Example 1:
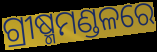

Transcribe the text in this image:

ଗ୍ରୀଷ୍ମମଣ୍ଡଳରେ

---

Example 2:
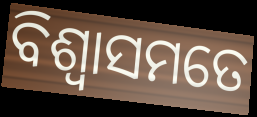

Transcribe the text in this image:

ବିଶ୍ୱାସମତେ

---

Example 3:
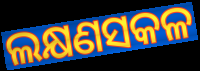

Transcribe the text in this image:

ଲକ୍ଷଣସକଳ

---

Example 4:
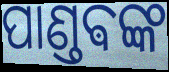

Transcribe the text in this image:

ପାଣ୍ଡଵଙ୍କ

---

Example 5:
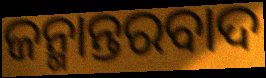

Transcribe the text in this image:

ଜନ୍ମାନ୍ତରବାଦ